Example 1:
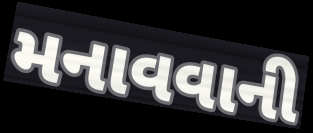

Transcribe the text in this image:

મનાવવાની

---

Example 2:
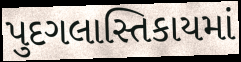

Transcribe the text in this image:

પુદગલાસ્તિકાયમાં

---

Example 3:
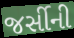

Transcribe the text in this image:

જર્સીની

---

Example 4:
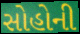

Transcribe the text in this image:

સોહોની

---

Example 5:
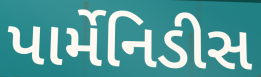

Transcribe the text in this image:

પાર્મેનિડીસ